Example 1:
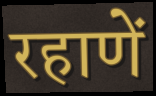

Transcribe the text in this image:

रहाणें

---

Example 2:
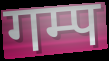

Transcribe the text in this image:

गम्प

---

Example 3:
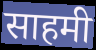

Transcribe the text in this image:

साहमी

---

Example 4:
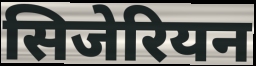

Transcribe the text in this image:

सिजेरियन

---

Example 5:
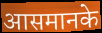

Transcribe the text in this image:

आसमानके